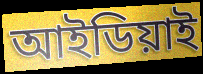
আইডিয়াই